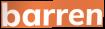
barren